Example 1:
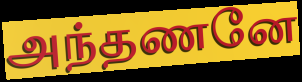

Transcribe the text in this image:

அந்தணனே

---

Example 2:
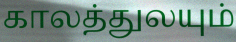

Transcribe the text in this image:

காலத்துலயும்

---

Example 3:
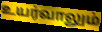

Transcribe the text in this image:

உயர்வாலும்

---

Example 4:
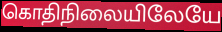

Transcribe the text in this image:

கொதிநிலையிலேயே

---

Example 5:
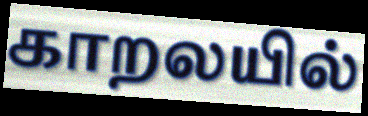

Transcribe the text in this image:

காறலயில்